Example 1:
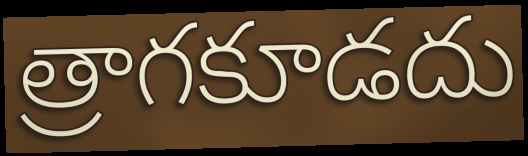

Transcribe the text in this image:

త్రాగకూడదు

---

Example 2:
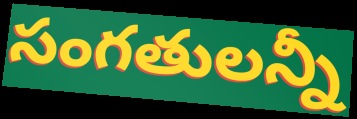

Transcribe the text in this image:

సంగతులన్నీ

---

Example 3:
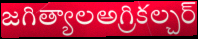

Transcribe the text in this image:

జగిత్యాలఅగ్రికల్చర్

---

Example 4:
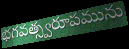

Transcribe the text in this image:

భగవత్స్వరూపమును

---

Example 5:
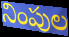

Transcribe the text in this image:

నింపుల